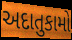
અદાતુકામો